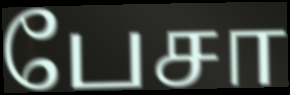
பேசா